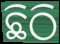
ଛିଠି